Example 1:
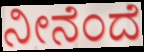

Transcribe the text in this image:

ನೀನೆಂದೆ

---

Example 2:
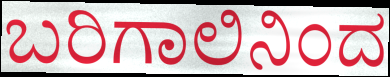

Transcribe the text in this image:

ಬರಿಗಾಲಿನಿಂದ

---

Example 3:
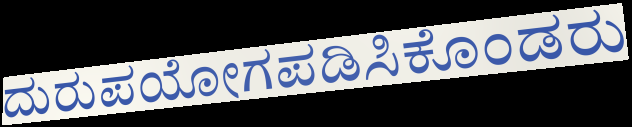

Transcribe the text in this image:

ದುರುಪಯೋಗಪಡಿಸಿಕೊಂಡರು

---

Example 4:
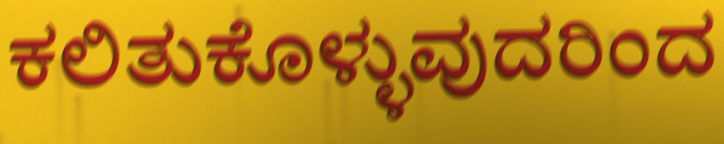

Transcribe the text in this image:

ಕಲಿತುಕೊಳ್ಳುವುದರಿಂದ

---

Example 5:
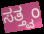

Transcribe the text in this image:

ಸತ್ತ್ವಂ